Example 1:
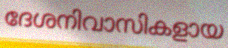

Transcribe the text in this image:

ദേശനിവാസികളായ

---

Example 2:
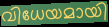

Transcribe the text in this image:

വിധേയമായി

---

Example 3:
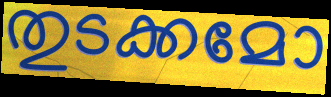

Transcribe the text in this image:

തുടക്കമോ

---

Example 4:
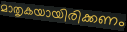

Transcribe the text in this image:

മാതൃകയായിരിക്കണം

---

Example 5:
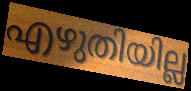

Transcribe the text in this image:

എഴുതിയില്ല